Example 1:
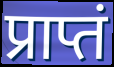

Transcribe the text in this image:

प्राप्तं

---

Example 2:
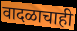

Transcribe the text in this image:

वादळाचाही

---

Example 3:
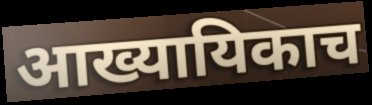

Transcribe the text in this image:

आख्यायिकाच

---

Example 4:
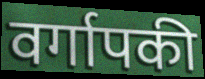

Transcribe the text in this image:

वर्गापकी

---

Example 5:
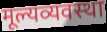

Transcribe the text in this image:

मूल्यव्यवस्था